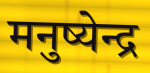
मनुष्येन्द्र